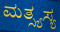
ಮತ್ಸ್ಯಸ್ಯ